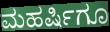
ಮಹರ್ಷಿಗೂ